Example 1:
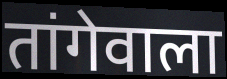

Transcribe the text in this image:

तांगेवाला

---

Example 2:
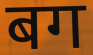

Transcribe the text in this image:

बग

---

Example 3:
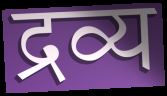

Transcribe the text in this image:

द्रव्य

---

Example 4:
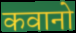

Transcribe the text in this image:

कवानो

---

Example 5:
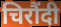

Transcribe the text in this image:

चिरौंदी